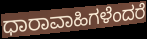
ಧಾರಾವಾಹಿಗಳೆಂದರೆ